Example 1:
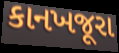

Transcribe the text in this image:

કાનખજૂરા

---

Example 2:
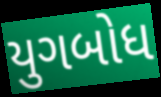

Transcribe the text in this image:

યુગબોધ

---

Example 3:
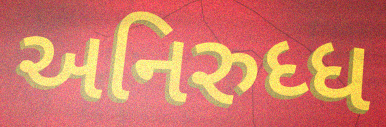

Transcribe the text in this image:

અનિરુધ્ધ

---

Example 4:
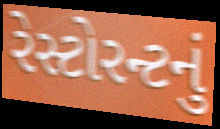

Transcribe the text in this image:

રેસ્ટોરન્ટનું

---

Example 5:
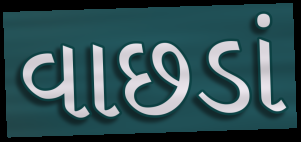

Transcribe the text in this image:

વાછડાં